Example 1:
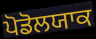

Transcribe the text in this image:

ਪੋਡੋਲਯਾਕ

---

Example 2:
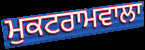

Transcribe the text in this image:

ਮੁਕਟਰਾਮਵਾਲਾ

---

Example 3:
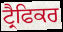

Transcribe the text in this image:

ਟ੍ਰੈਫਿਕਰ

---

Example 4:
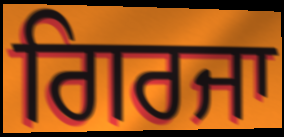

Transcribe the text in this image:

ਗਿਰਜਾ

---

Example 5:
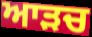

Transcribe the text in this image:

ਆੜਚ